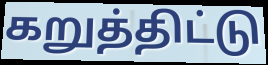
கறுத்திட்டு